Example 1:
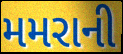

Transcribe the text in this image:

મમરાની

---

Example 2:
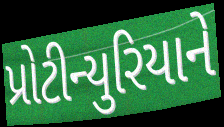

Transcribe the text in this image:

પ્રોટીન્યુરિયાને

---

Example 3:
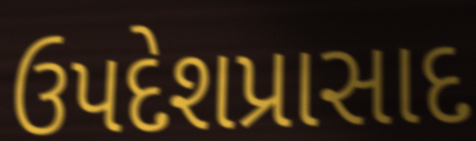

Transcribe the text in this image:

ઉપદેશપ્રાસાદ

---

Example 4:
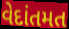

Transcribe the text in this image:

વેદાંતમત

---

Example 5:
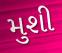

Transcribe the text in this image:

મુશી